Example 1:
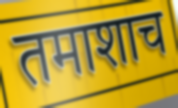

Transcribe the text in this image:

तमाशाच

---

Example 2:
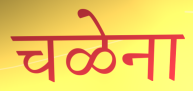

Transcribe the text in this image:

चळेना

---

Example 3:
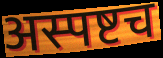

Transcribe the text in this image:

अस्पष्टच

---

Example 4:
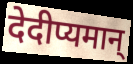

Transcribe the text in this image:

देदीप्यमान्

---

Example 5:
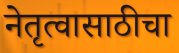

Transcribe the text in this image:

नेतृत्वासाठीचा